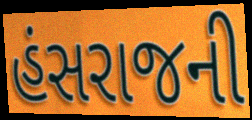
હંસરાજની